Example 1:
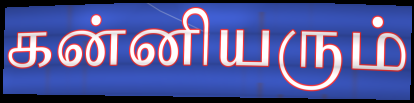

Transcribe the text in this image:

கன்னியரும்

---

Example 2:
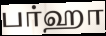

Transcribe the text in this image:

பர்ஹா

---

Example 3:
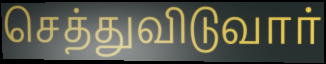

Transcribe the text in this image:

செத்துவிடுவார்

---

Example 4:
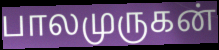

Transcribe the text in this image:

பாலமுருகன்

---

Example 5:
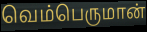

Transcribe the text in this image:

வெம்பெருமான்